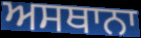
ਅਸਥਾਨਾ